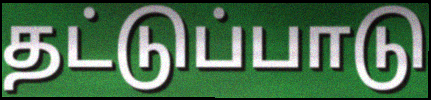
தட்டுப்பாடு